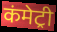
कंमेट्री